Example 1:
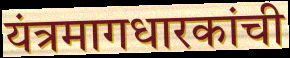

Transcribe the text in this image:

यंत्रमागधारकांची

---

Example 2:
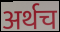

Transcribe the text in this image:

अर्थच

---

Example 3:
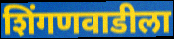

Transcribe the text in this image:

शिंगणवाडीला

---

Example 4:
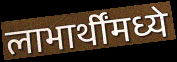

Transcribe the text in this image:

लाभार्थींमध्ये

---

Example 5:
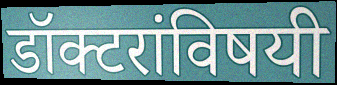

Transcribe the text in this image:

डॉक्टरांविषयी